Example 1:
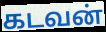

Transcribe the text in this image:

கடவன்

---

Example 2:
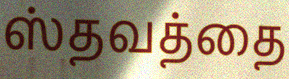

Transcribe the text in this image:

ஸ்தவத்தை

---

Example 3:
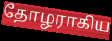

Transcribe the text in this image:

தோழராகிய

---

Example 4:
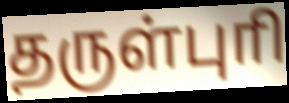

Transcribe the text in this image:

தருள்புரி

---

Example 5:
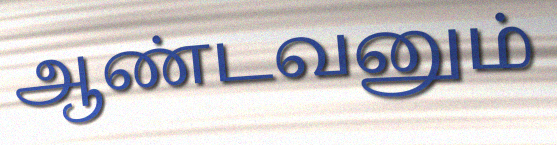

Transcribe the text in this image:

ஆண்டவனும்